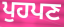
ਪੁਹਪਣ